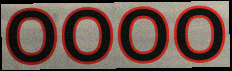
oooo